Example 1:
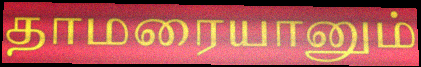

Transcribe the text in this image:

தாமரையானும்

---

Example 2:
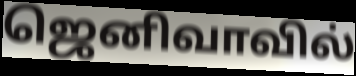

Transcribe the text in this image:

ஜெனிவாவில்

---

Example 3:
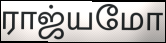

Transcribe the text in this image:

ராஜ்யமோ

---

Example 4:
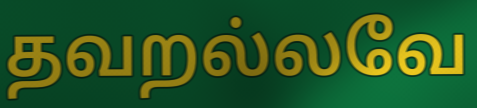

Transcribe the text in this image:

தவறல்லவே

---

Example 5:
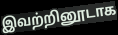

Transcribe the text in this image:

இவற்றினூடாக